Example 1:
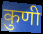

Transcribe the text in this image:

कुणी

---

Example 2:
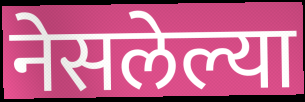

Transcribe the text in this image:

नेसलेल्या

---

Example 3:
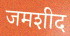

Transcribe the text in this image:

जमशीद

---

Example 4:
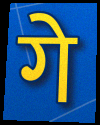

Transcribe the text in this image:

गे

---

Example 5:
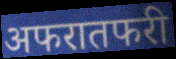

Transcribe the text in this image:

अफरातफरी